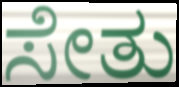
ಸೇತು